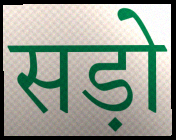
सड़ो